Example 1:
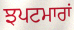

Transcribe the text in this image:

ਝਪਟਮਾਰਾਂ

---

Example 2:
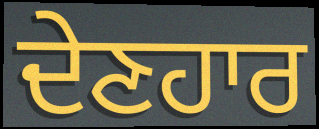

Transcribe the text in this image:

ਦੇਣਹਾਰ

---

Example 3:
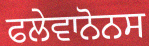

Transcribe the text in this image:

ਫਲੇਵਾਨੋਨਸ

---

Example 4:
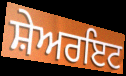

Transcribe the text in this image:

ਸ਼ੇਅਰਇਟ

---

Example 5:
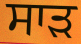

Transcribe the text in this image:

ਸਾਡ਼